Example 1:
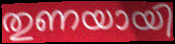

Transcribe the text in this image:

തുണയായി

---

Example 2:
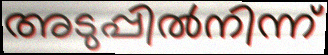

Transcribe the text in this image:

അടുപ്പിൽനിന്ന്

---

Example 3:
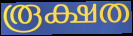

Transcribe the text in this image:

രൂക്ഷത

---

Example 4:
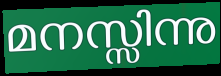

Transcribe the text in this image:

മനസ്സിന്നു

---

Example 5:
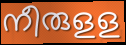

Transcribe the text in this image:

നീരുളള